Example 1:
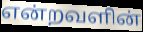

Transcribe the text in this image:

என்றவளின்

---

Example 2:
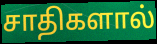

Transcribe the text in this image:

சாதிகளால்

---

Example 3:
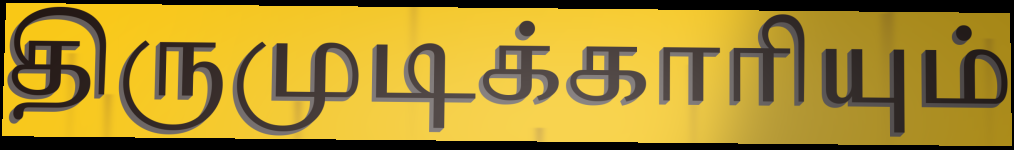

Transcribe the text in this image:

திருமுடிக்காரியும்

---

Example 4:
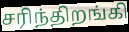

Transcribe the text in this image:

சரிந்திறங்கி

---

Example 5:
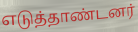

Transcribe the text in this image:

எடுத்தாண்டனர்